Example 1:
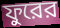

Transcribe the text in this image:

ফুরের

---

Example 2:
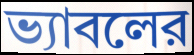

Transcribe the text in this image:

ভ্যাবলের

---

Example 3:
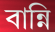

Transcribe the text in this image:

বান্নি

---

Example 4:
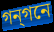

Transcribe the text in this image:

গন্গনে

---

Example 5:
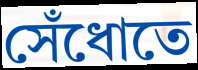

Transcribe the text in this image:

সেঁধোতে